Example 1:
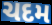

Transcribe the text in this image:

ચદમ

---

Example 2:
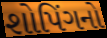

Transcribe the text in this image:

શોપિંગનો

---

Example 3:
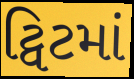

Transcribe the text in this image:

ટ્વિટમાં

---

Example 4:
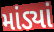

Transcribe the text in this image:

માંડ્યાં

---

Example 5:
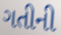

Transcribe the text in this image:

ગતીની